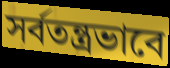
সর্বতন্ত্রভাবে